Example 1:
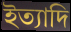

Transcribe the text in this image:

ইত্যাদি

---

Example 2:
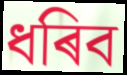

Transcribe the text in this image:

ধৰিব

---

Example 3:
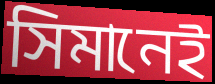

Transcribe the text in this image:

সিমানেই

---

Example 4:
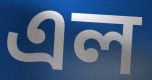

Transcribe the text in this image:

এল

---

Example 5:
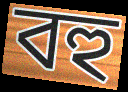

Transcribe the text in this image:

বহু